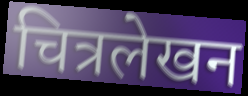
चित्रलेखन